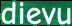
dievu